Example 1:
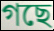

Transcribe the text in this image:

গছে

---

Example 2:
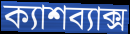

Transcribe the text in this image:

ক্যাশব্যাক্স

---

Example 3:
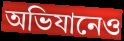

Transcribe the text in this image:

অভিযানেও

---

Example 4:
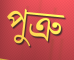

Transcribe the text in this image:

পুত্রু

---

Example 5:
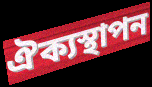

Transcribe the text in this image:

ঐক্যস্থাপন